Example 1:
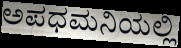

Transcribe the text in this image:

ಅಪಧಮನಿಯಲ್ಲಿ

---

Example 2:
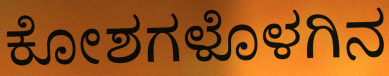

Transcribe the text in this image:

ಕೋಶಗಳೊಳಗಿನ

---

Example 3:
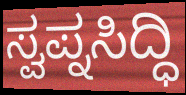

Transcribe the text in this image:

ಸ್ವಪ್ನಸಿದ್ಧಿ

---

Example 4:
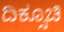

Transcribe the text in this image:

ದಿಕ್ಸೂಚಿ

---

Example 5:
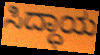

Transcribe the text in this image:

ಸಿದ್ಧಾಯ